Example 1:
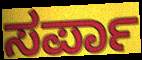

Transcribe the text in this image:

ಸರ್ಪಾ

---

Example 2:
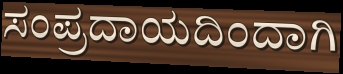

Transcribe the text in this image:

ಸಂಪ್ರದಾಯದಿಂದಾಗಿ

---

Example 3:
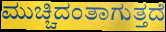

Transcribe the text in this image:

ಮುಚ್ಚಿದಂತಾಗುತ್ತದೆ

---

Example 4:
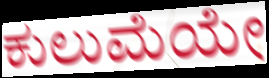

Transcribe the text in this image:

ಕುಲುಮೆಯೇ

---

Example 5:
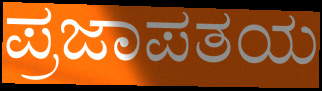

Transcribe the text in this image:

ಪ್ರಜಾಪತಯ